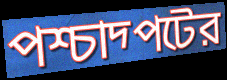
পশ্চাদ্পটের